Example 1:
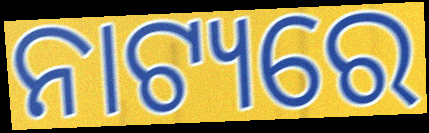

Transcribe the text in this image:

ନାଟ୍ୟରେ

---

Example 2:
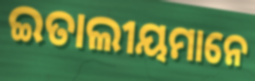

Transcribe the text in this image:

ଇତାଲୀୟମାନେ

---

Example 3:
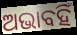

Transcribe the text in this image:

ଅଭାବହିଁ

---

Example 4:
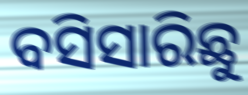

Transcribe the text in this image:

ବସିସାରିଛୁ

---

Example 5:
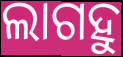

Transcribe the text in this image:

ଲାଗହୁ